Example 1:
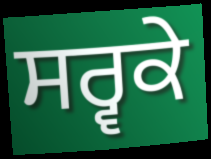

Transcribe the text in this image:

ਸਰ੍ਵਕੇ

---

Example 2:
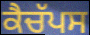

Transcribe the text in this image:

ਕੈਚੱਪਸ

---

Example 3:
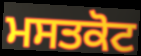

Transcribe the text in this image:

ਮਸਤਕੋਟ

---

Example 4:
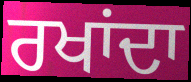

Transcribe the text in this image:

ਰਖਾਂਦਾ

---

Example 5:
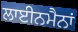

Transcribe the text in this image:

ਲਾਈਨਮੈਨਾਂ